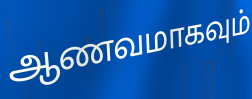
ஆணவமாகவும்